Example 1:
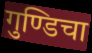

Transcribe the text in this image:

गुण्डिचा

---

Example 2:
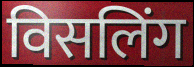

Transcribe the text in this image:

विसलिंग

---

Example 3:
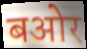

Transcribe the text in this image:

बओर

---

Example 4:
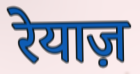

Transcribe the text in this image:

रेयाज़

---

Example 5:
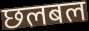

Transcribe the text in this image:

छलबल